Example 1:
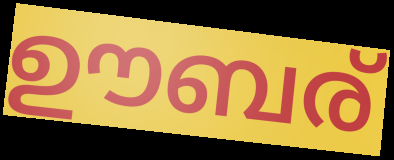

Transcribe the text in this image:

ഊബര്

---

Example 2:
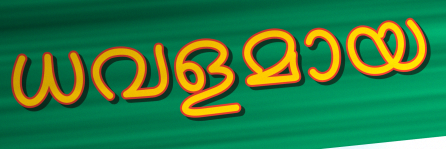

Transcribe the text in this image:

ധവളമായ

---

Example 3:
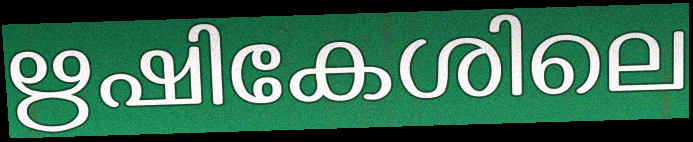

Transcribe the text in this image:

ഋഷികേശിലെ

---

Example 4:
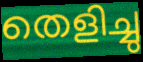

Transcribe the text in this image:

തെളിച്ചു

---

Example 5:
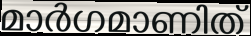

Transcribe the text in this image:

മാർഗമാണിത്